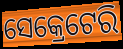
ସେକ୍ରେଟେରି